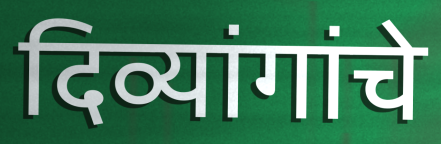
दिव्यांगांचे